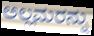
ಅಲ್ಲಮರನ್ನು